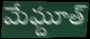
మేఘ్దూత్